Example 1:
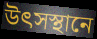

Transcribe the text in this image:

উৎসস্থানে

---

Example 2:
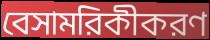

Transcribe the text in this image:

বেসামরিকীকরণ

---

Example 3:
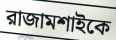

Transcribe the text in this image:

রাজামশাইকে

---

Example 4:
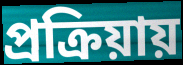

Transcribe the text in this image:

প্রক্রিয়ায়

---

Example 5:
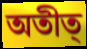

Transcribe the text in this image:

অতীত্